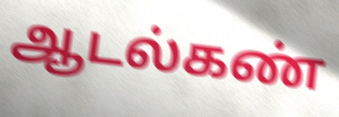
ஆடல்கண்